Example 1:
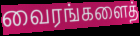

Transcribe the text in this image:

வைரங்களைத்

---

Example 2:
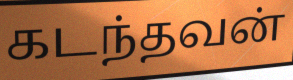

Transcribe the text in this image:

கடந்தவன்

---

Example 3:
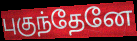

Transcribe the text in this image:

புகுந்தேனே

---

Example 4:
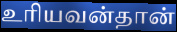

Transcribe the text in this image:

உரியவன்தான்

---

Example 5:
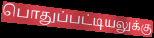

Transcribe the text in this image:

பொதுப்பட்டியலுக்கு